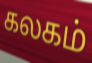
கலகம்